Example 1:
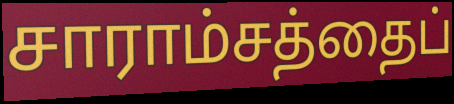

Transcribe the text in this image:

சாராம்சத்தைப்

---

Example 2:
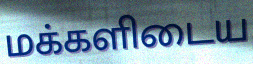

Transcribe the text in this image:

மக்களிடைய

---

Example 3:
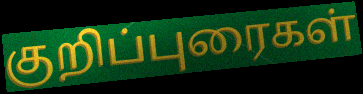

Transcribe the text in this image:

குறிப்புரைகள்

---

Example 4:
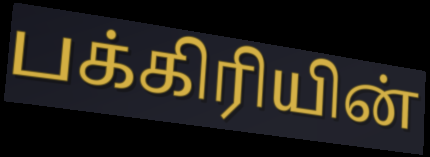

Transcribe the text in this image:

பக்கிரியின்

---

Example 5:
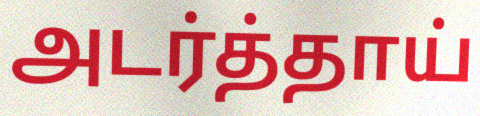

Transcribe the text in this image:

அடர்த்தாய்